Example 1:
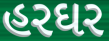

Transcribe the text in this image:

હરઘર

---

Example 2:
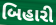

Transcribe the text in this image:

બિહારી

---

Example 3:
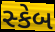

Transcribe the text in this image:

સ્કેબ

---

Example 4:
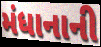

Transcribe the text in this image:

મંધાનાની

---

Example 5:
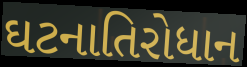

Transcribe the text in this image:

ઘટનાતિરોધાન